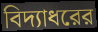
বিদ্যাধরের